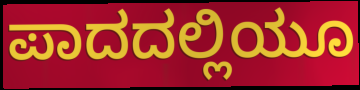
ಪಾದದಲ್ಲಿಯೂ